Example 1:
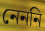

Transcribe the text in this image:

নেননি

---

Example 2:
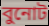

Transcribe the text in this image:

বুনোট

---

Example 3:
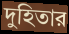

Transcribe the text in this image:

দুহিতার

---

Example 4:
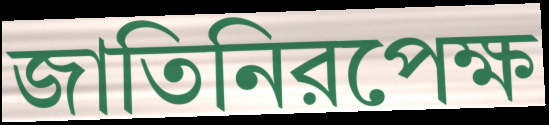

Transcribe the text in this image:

জাতিনিরপেক্ষ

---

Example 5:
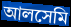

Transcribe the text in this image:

আলসেমি